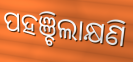
ପହଞ୍ଚିଲାକ୍ଷଣି